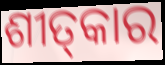
ଶୀତ୍‌କାର